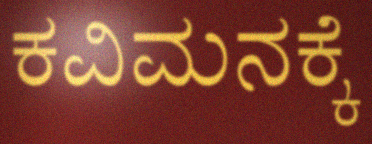
ಕವಿಮನಕ್ಕೆ